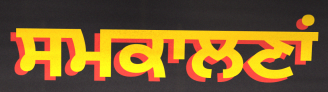
ਸਮਕਾਲਣਾਂ